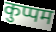
कुप्पम